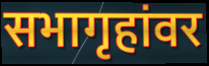
सभागृहांवर